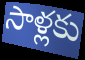
సాళ్లకు